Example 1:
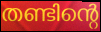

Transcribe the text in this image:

തണ്ടിന്റെ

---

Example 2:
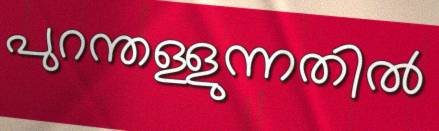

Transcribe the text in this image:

പുറന്തള്ളുന്നതിൽ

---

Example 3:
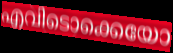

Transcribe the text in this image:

എവിടൊക്കെയോ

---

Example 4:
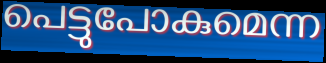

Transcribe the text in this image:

പെട്ടുപോകുമെന്ന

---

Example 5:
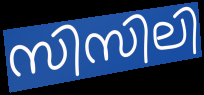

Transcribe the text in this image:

സിസിലി